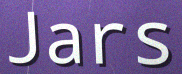
Jars